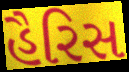
હૈરિસ